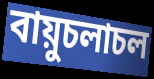
বায়ুচলাচল